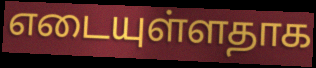
எடையுள்ளதாக